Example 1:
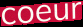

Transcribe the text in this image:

coeur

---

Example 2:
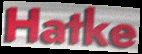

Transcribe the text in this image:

Hatke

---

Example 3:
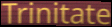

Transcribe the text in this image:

Trinitate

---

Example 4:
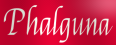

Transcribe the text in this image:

Phalguna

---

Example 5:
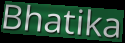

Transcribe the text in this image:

Bhatika